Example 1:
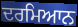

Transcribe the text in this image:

ਦਰਮਿਆਨ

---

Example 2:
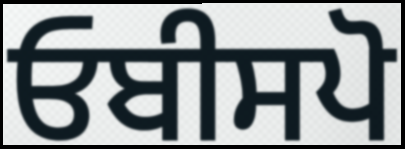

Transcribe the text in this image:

ਓਬੀਸਪੋ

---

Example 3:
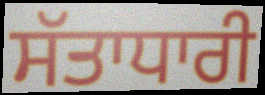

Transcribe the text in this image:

ਸੱਤਾਧਾਰੀ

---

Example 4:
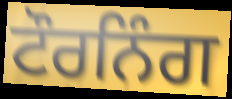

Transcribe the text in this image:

ਟੌਰਨਿੰਗ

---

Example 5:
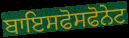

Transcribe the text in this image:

ਬਾਇਸਫੋਸਫੋਨੇਟ